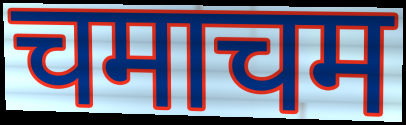
चमाचम